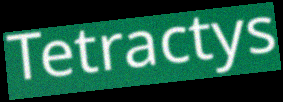
Tetractys